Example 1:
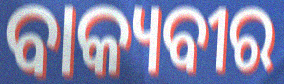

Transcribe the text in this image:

ବାକ୍ୟବୀର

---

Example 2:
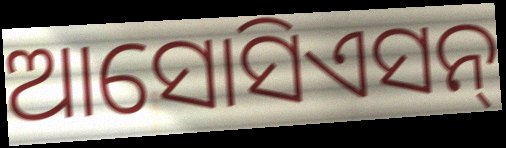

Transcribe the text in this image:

ଆସୋସିଏସନ୍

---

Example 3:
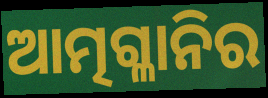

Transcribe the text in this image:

ଆତ୍ମଗ୍ଳାନିର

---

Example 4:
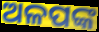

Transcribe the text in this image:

ଅଳପଙ୍କ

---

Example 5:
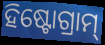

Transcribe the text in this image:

ହିଷ୍ଟୋଗ୍ରାମ୍